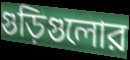
গুড়িগুলোর